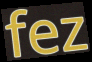
fez